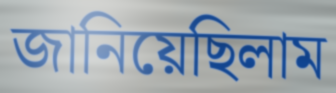
জানিয়েছিলাম